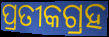
ପ୍ରତୀକଗ୍ରହ